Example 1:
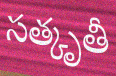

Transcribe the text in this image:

సత్కృతీ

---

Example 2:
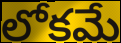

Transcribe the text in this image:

లోకమే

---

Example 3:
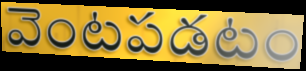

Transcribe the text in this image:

వెంటపడటం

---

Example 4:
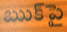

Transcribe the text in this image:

ఋక్‌పై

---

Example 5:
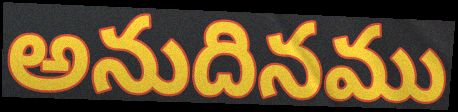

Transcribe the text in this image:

అనుదినము